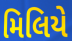
મિલિયે